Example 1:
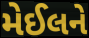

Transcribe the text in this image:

મેઈલને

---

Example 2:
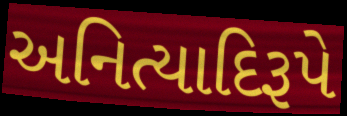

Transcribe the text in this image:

અનિત્યાદિરૂપે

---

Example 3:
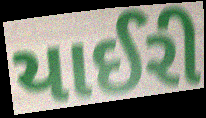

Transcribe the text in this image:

યાઈરી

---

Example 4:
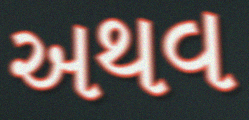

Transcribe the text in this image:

અથવ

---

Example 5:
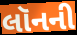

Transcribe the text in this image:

લૉનની